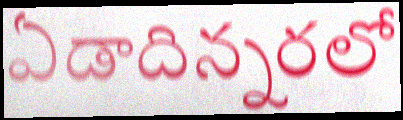
ఏడాదిన్నరలో